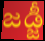
జడ్జీ